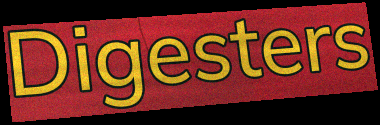
Digesters